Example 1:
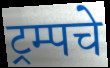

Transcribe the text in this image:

ट्रम्पचे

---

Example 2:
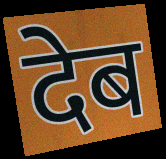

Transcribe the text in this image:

देब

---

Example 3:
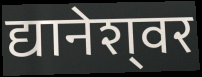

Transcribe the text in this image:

द्यानेश्वर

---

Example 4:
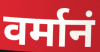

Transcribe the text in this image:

वर्मानं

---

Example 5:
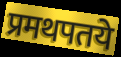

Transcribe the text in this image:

प्रमथपतये